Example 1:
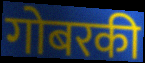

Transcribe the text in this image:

गोबरकी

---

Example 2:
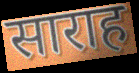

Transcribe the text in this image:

साराह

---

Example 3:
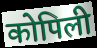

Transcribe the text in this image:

कोपिली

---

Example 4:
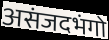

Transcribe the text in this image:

असंजदभंगो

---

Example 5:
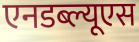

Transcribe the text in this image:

एनडब्ल्यूएस